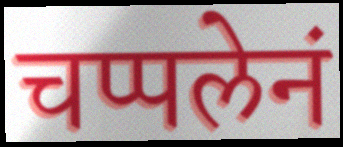
चप्पलेनं